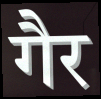
गैर